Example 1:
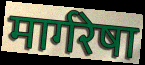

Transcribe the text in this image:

मार्गरेषा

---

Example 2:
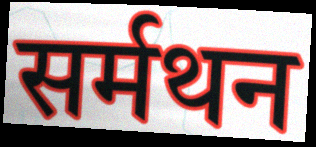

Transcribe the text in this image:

सर्मथन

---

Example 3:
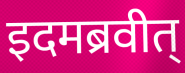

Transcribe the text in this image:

इदमब्रवीत्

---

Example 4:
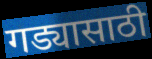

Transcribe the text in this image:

गड्यासाठी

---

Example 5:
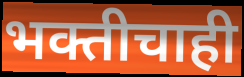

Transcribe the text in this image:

भक्तीचाही